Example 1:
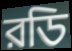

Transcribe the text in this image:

রডি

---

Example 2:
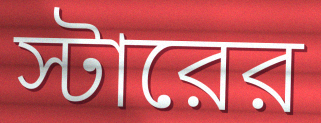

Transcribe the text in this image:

স্টারের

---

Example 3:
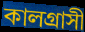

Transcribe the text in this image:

কালগ্রাসী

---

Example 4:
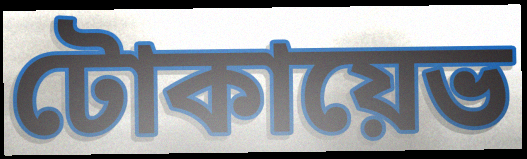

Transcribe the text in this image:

টোকায়েভ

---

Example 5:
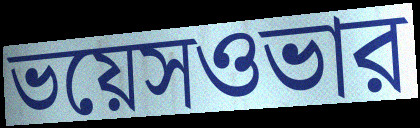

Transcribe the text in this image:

ভয়েসওভার